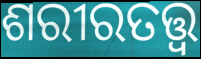
ଶରୀରତତ୍ତ୍ୱ